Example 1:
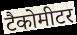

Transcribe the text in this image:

टैकोमीटर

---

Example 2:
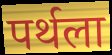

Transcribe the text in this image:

पर्थला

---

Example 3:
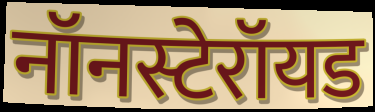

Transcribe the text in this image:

नॉनस्टेरॉयड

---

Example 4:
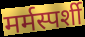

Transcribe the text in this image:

मर्मस्पर्शी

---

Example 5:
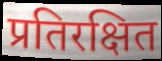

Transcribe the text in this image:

प्रतिरक्षित